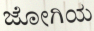
ಜೋಗಿಯ